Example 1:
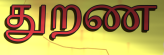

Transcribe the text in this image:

துறண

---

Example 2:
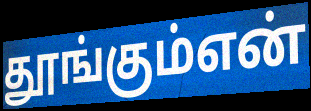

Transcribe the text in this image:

தூங்கும்என்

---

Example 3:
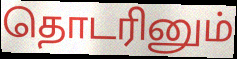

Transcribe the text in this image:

தொடரினும்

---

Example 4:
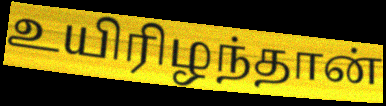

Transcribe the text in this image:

உயிரிழந்தான்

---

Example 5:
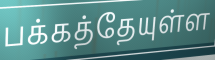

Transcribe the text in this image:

பக்கத்தேயுள்ள